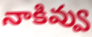
నాకివ్వు